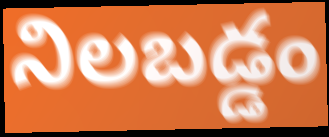
నిలబడ్డం